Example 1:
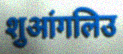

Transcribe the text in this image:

शुआंगलिउ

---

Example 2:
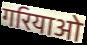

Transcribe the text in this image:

गरियाओ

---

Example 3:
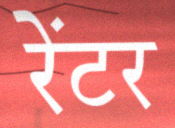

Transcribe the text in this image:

रेंटर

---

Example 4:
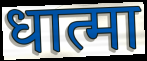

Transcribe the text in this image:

धात्मा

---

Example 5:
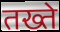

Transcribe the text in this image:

तख्ते